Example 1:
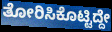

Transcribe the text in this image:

ತೋರಿಸಿಕೊಟ್ಟಿದ್ದೇ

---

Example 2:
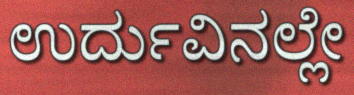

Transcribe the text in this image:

ಉರ್ದುವಿನಲ್ಲೇ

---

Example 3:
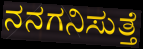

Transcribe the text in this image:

ನನಗನಿಸುತ್ತೆ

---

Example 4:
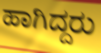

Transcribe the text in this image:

ಹಾಗಿದ್ದರು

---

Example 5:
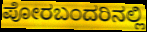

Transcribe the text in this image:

ಪೋರಬಂದರಿನಲ್ಲಿ